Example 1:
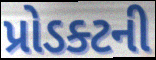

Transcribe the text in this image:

પ્રોડક્ટની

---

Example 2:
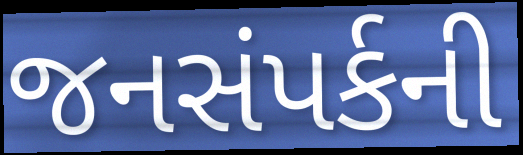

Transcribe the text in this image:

જનસંપર્કની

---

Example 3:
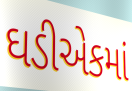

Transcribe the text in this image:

ઘડીએકમાં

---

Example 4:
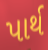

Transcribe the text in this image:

પાર્થ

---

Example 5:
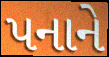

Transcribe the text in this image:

પનાને